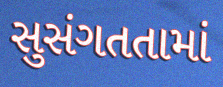
સુસંગતતામાં